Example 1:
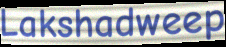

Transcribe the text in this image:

Lakshadweep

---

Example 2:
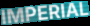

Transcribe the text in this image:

IMPERIAL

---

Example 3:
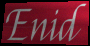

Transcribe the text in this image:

Enid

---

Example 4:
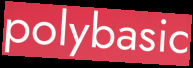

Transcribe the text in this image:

polybasic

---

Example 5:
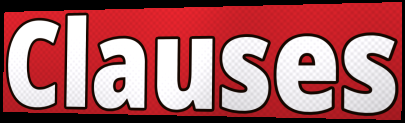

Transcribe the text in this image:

Clauses